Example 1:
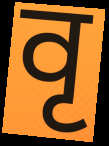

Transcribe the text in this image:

वृ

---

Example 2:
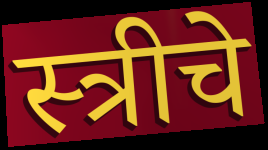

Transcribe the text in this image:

स्त्रीचे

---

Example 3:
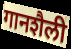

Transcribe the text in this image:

गानशैली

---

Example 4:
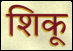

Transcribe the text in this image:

शिकू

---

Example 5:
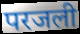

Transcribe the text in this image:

परजली